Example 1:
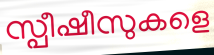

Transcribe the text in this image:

സ്പീഷീസുകളെ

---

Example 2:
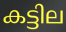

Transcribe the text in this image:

കട്ടില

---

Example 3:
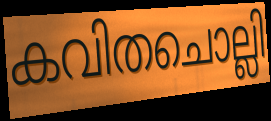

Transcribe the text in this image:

കവിതചൊല്ലി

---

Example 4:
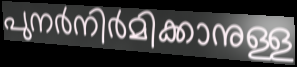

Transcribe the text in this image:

പുനർനിർമിക്കാനുള്ള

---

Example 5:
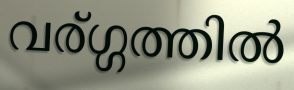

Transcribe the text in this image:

വര്ഗ്ഗത്തിൽ